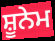
ਸ਼ੂਨੇਮ